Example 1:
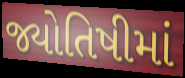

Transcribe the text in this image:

જ્યોતિષીમાં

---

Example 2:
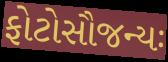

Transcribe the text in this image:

ફોટોસૌજન્યઃ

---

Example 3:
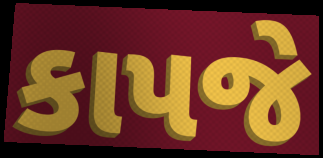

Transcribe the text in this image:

કાપજે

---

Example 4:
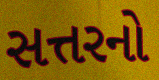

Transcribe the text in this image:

સત્તરનો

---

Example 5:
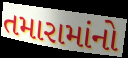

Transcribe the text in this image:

તમારામાંનો